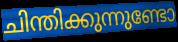
ചിന്തിക്കുന്നുണ്ടോ